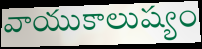
వాయుకాలుష్యం